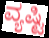
ವ್ಯಷ್ಟಿ